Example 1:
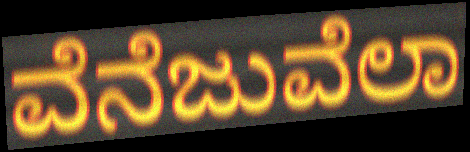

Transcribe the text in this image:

ವೆನೆಜುವೆಲಾ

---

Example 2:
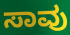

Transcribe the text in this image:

ಸಾವು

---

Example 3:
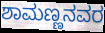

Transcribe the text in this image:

ಶಾಮಣ್ಣನವರ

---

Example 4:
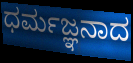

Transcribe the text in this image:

ಧರ್ಮಜ್ಞನಾದ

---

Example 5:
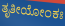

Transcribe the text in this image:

ತೃತೀಯೋಂಕಃ